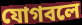
যোগবলে